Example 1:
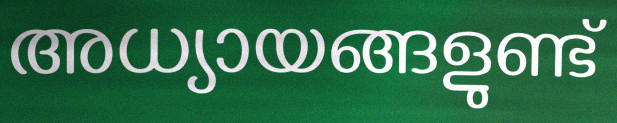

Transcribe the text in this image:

അധ്യായങ്ങളുണ്ട്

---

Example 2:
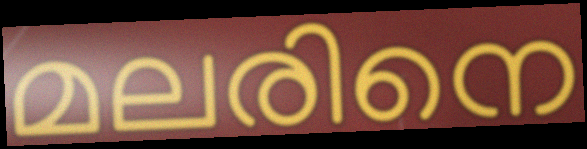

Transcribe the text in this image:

മലരിനെ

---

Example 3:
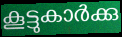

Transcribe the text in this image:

കൂട്ടുകാർക്കു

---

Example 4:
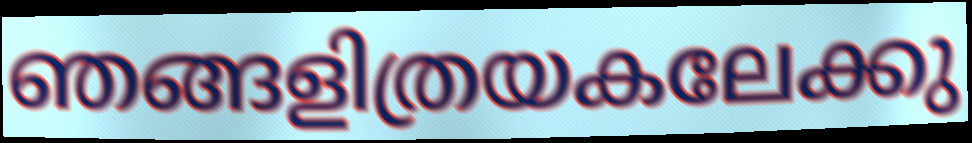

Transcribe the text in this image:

ഞങ്ങളിത്രയകലേക്കു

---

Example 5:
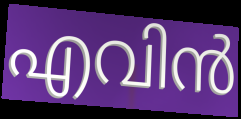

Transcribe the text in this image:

എവിൻ